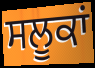
ਸਲੂਕਾਂ